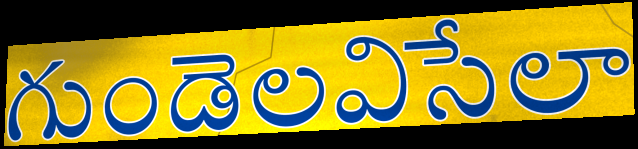
గుండెలవిసేలా